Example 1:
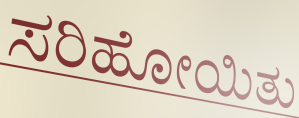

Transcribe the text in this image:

ಸರಿಹೋಯಿತು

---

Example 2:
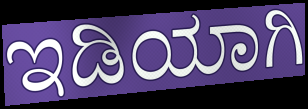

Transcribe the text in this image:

ಇಡಿಯಾಗಿ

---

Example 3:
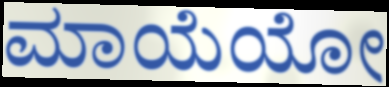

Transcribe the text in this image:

ಮಾಯೆಯೋ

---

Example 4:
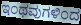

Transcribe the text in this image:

ಇಂಥವುಗಳಿಂದ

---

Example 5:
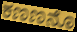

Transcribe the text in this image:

ಕಣಣನೊ